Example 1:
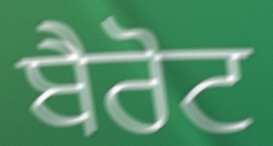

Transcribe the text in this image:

ਬੈਰੋਟ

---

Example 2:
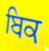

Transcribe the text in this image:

ਬਿਕ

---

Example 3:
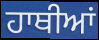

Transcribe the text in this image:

ਹਾਥੀਆਂ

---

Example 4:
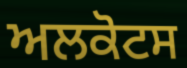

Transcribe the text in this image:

ਅਲਕੋਟਸ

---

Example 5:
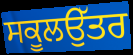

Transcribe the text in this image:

ਸਕੂਲਉੱਤਰ